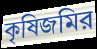
কৃষিজমির